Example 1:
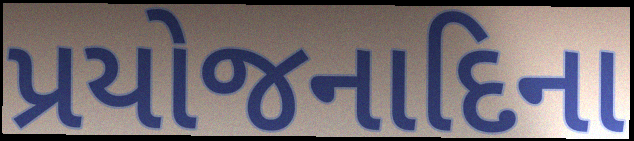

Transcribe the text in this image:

પ્રયોજનાદિના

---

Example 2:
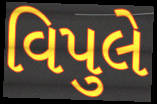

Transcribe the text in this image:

વિપુલે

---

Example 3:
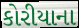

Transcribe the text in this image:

કોરીયાના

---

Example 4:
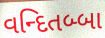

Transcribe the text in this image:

વન્દિતબ્બા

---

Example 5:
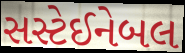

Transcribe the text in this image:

સસ્ટેઈનેબલ